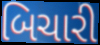
બિચારી